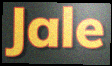
Jale